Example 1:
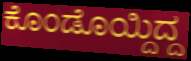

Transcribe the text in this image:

ಕೊಂಡೊಯ್ದಿದ್ದ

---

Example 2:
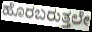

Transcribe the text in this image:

ಹೊರಬರುತ್ತಲೇ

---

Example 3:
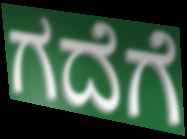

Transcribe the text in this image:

ಗದೆಗೆ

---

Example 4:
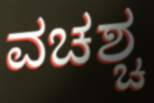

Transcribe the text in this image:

ವಚಶ್ಚ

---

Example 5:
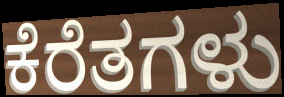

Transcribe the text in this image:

ಕೆರೆತಗಳು